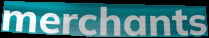
merchants